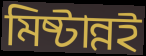
মিষ্টান্নই